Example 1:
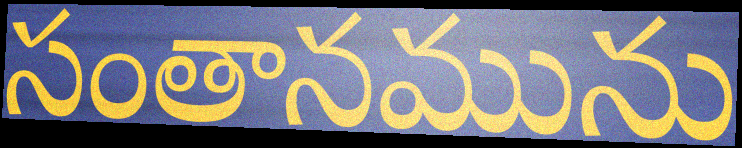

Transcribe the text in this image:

సంతానమును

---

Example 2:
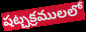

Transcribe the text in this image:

షట్చక్రములలో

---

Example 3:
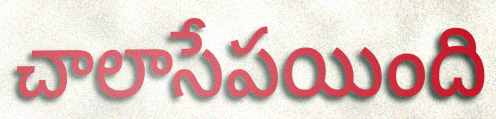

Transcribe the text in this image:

చాలాసేపయింది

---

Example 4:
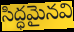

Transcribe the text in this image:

సిద్ధమైనవి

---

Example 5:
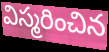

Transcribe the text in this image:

విస్మరించిన